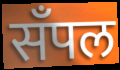
सँपल